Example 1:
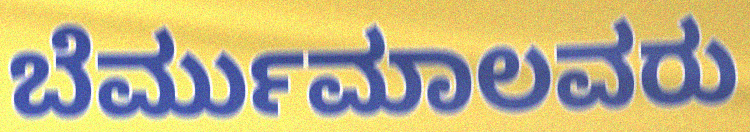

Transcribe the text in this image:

ಬೆರ್ಮುಮಾಲವರು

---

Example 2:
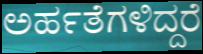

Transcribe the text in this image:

ಅರ್ಹತೆಗಳಿದ್ದರೆ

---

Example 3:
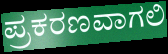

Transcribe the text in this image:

ಪ್ರಕರಣವಾಗಲಿ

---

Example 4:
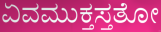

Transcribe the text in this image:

ಏವಮುಕ್ತಸ್ತತೋ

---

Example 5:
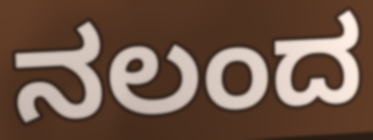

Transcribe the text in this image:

ನಲಂದ